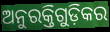
ଅନୁରକ୍ତିଗୁଡ଼ିକର